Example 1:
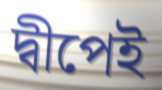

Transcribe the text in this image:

দ্বীপেই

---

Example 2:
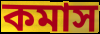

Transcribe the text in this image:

কমাস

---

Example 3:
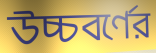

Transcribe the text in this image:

উচ্চবর্ণের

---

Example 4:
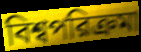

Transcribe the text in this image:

বিশ্বপরিক্রমা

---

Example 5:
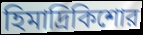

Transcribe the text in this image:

হিমাদ্রিকিশোর